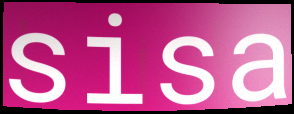
sisa